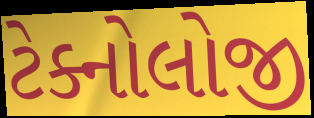
ટેક્નોલોજી